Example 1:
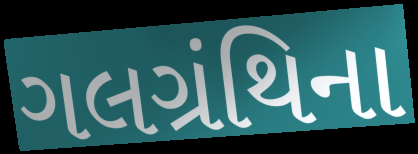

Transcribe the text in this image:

ગલગ્રંથિના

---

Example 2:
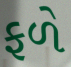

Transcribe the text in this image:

ફળે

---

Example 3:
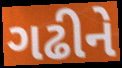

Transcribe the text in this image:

ગઢીને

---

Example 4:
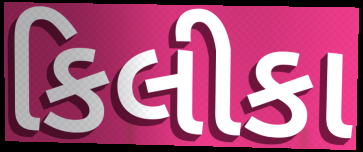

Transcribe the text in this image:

કિલીકા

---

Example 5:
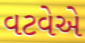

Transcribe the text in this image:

વટવેએ